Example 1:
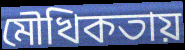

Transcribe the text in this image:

মৌখিকতায়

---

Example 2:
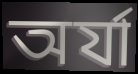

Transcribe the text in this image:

অর্যা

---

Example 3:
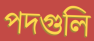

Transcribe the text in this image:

পদগুলি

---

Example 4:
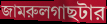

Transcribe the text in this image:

জামরুলগাছটার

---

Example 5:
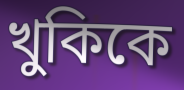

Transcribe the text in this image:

খুকিকে